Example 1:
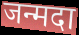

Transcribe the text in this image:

जन्मदा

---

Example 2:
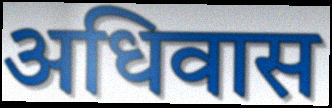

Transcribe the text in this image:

अधिवास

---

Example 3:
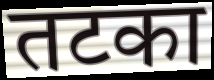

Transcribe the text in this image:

तटका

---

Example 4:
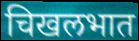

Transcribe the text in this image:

चिखलभात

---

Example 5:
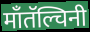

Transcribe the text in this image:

माँतॅल्चिनी